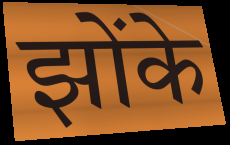
झोंके